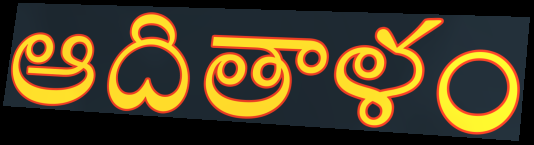
ఆదితాళం